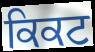
ਕਿਕਟ